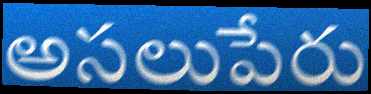
అసలుపేరు